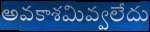
అవకాశమివ్వలేదు